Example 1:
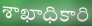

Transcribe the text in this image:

శాఖాధికారి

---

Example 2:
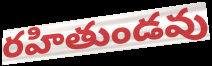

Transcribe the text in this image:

రహితుండవు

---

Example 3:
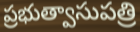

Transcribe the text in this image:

ప్రభుత్వాసుపత్రి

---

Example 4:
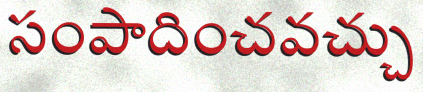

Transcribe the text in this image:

సంపాదించవచ్చు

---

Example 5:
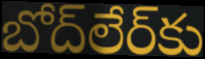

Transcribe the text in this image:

బోద్‌లేర్‌కు